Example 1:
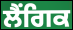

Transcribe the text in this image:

ਲੈਂਗਿਕ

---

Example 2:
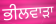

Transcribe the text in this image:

ਭੀਲਵਾੜਾ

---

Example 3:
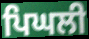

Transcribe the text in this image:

ਪਿਘਲੀ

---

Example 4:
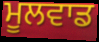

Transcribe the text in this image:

ਮੂਲਵਾਡ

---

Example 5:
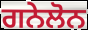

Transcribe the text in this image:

ਗਨੇਲੋਨ